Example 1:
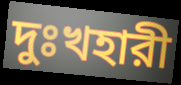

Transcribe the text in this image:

দুঃখহারী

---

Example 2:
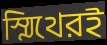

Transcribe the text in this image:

স্মিথেরই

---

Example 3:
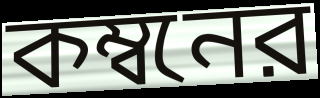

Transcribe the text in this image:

কম্বনের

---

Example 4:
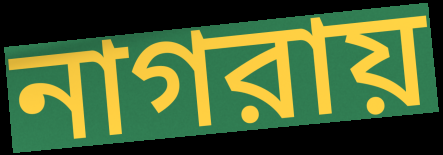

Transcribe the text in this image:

নাগরায়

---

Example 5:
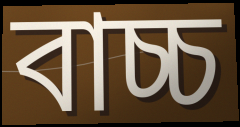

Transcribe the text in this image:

বাচ্চ